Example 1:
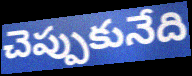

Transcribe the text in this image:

చెప్పుకునేది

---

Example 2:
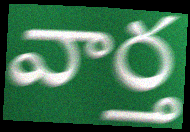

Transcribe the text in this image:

వార్త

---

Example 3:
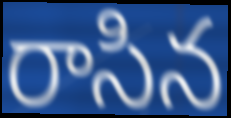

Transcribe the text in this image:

రాసిన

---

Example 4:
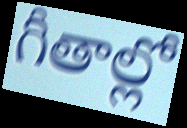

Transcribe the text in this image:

గీతాల్లో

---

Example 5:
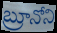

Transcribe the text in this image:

బ్రూనోని